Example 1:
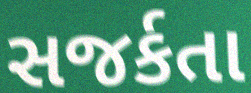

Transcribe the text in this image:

સજર્કતા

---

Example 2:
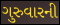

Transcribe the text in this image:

ગુરુવારની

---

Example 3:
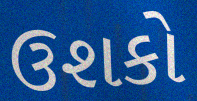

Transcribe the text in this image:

ઉશકો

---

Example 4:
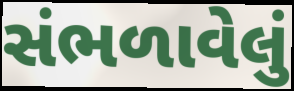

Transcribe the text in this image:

સંભળાવેલું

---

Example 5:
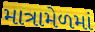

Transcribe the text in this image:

માત્રામેળમાં